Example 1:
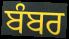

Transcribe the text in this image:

ਬੰਬਰ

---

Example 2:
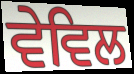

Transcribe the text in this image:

ਵੇਵਿਲ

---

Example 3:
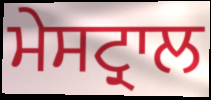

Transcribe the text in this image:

ਮੇਸਟ੍ਰਾਲ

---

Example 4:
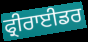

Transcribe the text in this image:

ਫ੍ਰੀਰਾਈਡਰ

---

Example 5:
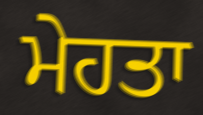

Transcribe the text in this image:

ਮੇਹਤਾ